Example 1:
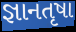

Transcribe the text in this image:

જ્ઞાનતૃષા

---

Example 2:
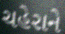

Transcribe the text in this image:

ચહેરાને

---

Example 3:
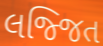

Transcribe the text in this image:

લજ્જિત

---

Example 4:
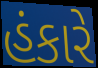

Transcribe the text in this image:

હંકારે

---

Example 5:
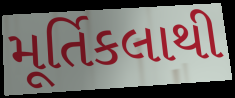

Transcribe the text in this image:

મૂર્તિકલાથી